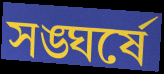
সঙ্ঘর্ষে